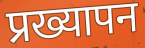
प्रख्यापन